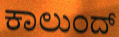
ಕಾಲುಂದ್